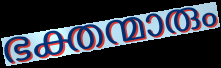
ഭക്തന്മാരും